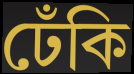
ঢেঁকি